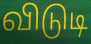
விடுடி